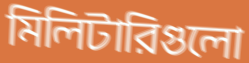
মিলিটারিগুলো